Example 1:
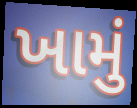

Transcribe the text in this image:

ખામું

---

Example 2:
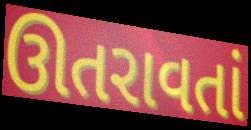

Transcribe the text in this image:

ઊતરાવતાં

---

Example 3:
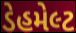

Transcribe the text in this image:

ડેહમેલ્ટ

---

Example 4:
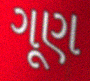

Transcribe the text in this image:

ગૂણ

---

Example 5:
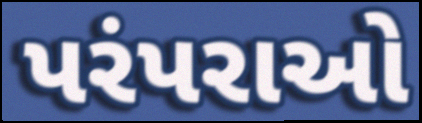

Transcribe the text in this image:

પરંપરાઓ